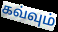
கவ்வும்